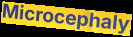
Microcephaly